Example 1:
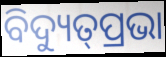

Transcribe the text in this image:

ବିଦ୍ୟୁତ୍‌ପ୍ରଭା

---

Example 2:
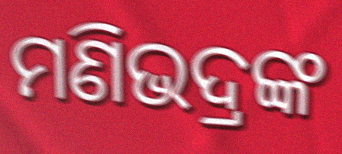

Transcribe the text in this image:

ମଣିଭଦ୍ରଙ୍କ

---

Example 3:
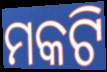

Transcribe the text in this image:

ମକଟି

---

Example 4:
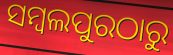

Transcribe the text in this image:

ସମ୍ବଲପୁରଠାରୁ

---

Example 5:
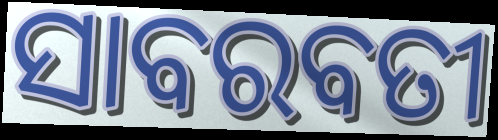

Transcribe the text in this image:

ସାବରବତୀ